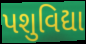
પશુવિદ્યા